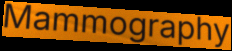
Mammography